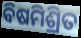
ବିଷମିଶ୍ରିତ